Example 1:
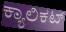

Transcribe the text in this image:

ಕ್ಯಾಲಿಕಟ್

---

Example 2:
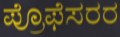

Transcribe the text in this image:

ಪ್ರೊಫೆಸರರ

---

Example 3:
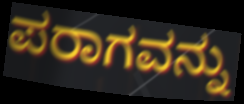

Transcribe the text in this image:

ಪರಾಗವನ್ನು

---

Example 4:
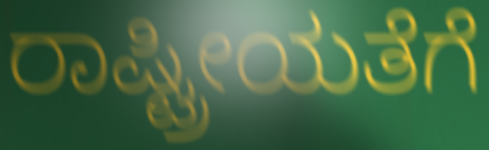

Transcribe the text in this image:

ರಾಷ್ಟ್ರೀಯತೆಗೆ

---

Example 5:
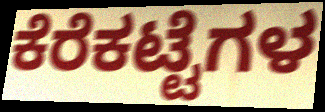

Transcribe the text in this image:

ಕೆರೆಕಟ್ಟೆಗಳ